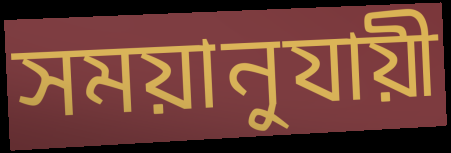
সময়ানুযায়ী